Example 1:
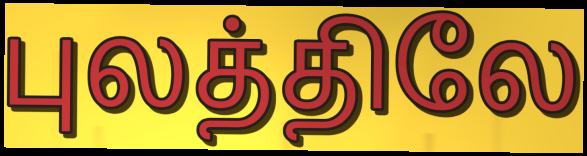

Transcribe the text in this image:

புலத்திலே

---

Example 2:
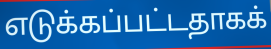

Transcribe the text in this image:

எடுக்கப்பட்டதாகக்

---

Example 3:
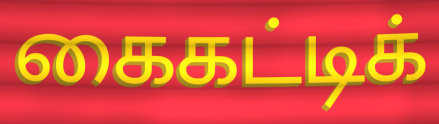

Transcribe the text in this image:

கைகட்டிக்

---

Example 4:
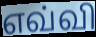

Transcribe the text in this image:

எவ்வி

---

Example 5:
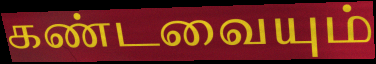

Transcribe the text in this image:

கண்டவையும்